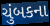
ચુંબકના